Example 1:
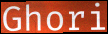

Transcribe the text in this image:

Ghori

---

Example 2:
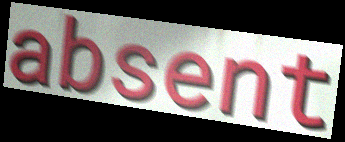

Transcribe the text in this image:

absent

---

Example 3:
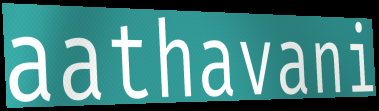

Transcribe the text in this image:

aathavani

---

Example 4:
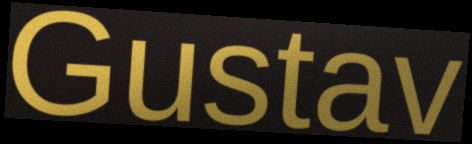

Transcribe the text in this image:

Gustav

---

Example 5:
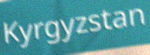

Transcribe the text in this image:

Kyrgyzstan